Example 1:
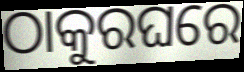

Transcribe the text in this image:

ଠାକୁରଘରେ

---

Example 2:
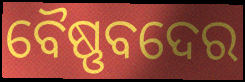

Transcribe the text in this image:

ବୈଷ୍ଣବଦେର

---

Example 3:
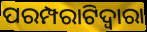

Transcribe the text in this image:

ପରମ୍ପରାଟିଦ୍ୱାରା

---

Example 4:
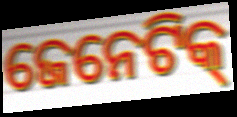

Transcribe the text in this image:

ଜେନେଟିକ୍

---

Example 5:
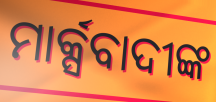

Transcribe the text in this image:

ମାର୍କ୍ସବାଦୀଙ୍କ